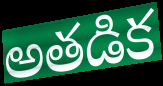
అతడిక